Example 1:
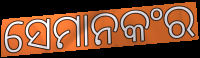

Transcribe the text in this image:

ସେମାନକଂର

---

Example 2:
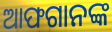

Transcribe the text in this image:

ଆଫଗାନଙ୍କ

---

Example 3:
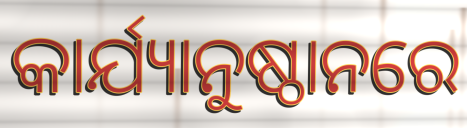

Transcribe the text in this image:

କାର୍ଯ୍ୟାନୁଷ୍ଠାନରେ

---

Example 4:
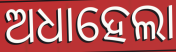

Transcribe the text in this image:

ଅଧାହେଲା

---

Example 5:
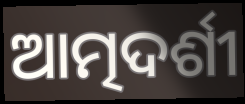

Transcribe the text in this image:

ଆତ୍ମଦର୍ଶୀ